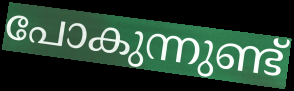
പോകുന്നുണ്ട്